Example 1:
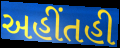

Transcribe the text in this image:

અહીંતહી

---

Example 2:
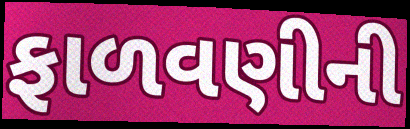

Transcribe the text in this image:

ફાળવણીની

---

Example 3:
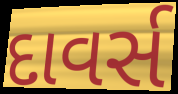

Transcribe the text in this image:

દાવર્સ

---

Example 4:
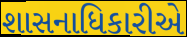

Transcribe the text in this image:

શાસનાધિકારીએ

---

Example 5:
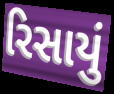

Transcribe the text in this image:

રિસાયું